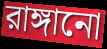
রাঙ্গানো